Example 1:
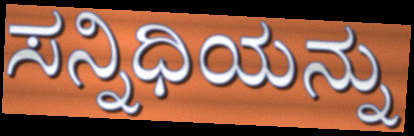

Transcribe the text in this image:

ಸನ್ನಿಧಿಯನ್ನು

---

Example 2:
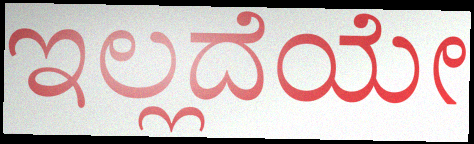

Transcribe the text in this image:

ಇಲ್ಲದೆಯೇ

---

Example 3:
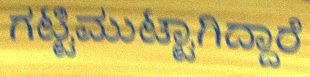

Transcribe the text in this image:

ಗಟ್ಟಿಮುಟ್ಟಾಗಿದ್ದಾರೆ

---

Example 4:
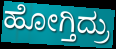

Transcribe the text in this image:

ಹೋಗ್ತಿದ್ರು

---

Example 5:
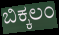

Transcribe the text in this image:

ಬಿಕ್ಕಲಂ